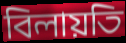
বিলায়তি